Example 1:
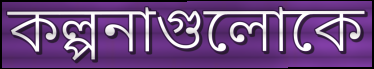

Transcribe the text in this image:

কল্পনাগুলোকে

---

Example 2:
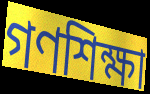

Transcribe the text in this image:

গণশিক্ষা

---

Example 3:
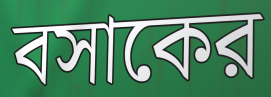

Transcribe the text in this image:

বসাকের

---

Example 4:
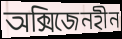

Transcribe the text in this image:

অক্সিজেনহীন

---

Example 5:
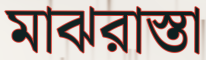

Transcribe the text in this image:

মাঝরাস্তা